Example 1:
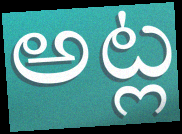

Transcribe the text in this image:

అట్ల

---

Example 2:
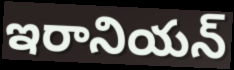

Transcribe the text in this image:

ఇరానియన్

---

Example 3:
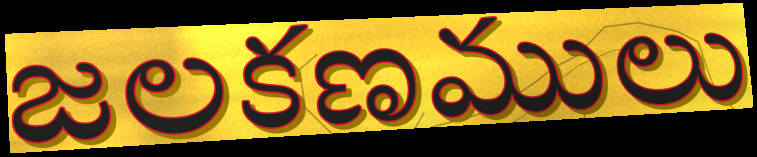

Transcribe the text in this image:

జలకణములు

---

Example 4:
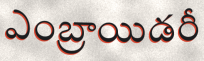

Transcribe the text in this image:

ఎంబ్రాయిడరీ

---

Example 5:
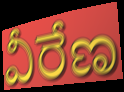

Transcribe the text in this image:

వీరేణ